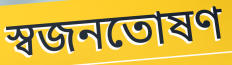
স্বজনতোষণ